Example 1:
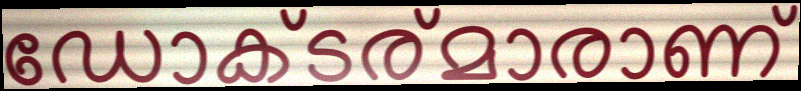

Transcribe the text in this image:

ഡോക്ടര്മാരാണ്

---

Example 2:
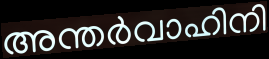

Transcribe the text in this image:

അന്തർവാഹിനി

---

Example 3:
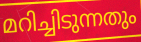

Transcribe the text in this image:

മറിച്ചിടുന്നതും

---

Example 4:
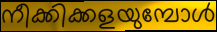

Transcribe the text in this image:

നീക്കിക്കളയുമ്പോൾ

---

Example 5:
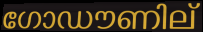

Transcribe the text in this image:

ഗോഡൗണില്